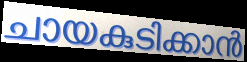
ചായകുടിക്കാൻ